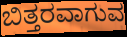
ಬಿತ್ತರವಾಗುವ